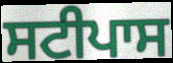
ਸਟੀਪਾਸ